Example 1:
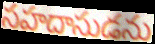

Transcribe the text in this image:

సహదాసుడను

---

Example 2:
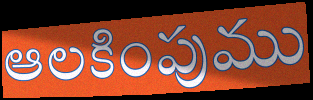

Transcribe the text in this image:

ఆలకింపుము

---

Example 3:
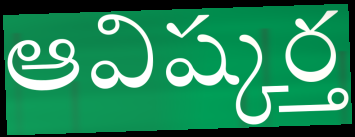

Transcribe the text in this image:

ఆవిష్కర్త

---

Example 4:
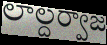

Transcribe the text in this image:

లాల్దర్వాజ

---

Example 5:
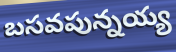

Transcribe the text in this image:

బసవపున్నయ్య